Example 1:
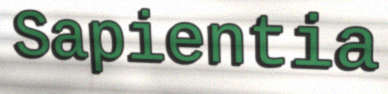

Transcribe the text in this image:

Sapientia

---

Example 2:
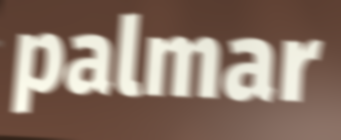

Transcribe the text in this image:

palmar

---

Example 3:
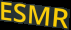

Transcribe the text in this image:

ESMR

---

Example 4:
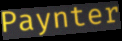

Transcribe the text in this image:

Paynter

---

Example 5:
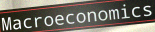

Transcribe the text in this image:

Macroeconomics